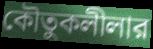
কৌতুকলীলার